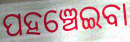
ପହଞ୍ଚେଇବା